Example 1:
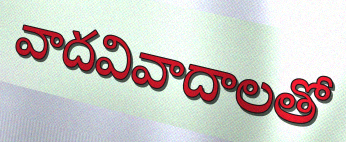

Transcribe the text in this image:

వాదవివాదాలతో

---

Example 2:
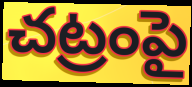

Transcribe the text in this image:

చట్రంపై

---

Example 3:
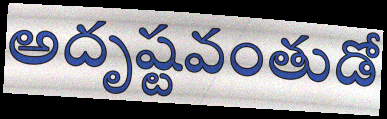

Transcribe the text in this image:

అదృష్టవంతుడో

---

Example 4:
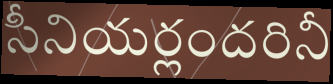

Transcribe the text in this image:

సీనియర్లందరినీ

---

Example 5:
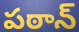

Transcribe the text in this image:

పఠాన్